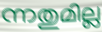
ന്നതുമില്ല